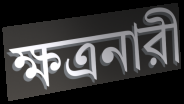
ক্ষত্রনারী